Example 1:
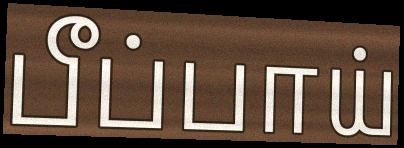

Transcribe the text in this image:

பீப்பாய்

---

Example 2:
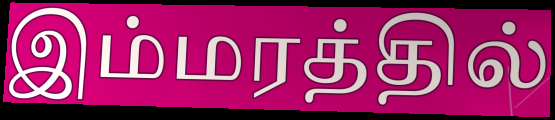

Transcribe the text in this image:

இம்மரத்தில்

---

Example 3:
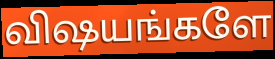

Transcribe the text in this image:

விஷயங்களே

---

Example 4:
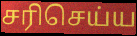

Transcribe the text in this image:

சரிசெய்ய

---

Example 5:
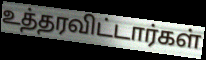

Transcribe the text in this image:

உத்தரவிட்டார்கள்